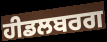
ਹੀਡਲਬਰਗ